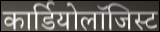
कार्डियोलॉजिस्ट